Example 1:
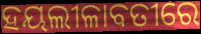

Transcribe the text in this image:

ହୟଲୀଳାବତୀରେ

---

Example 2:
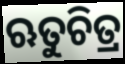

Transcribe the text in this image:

ଋତୁଚିତ୍ର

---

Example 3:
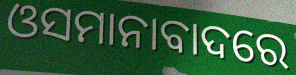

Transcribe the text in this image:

ଓସମାନାବାଦରେ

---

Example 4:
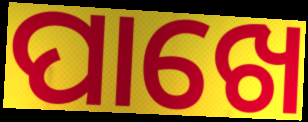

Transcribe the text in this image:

ପାଖେ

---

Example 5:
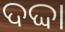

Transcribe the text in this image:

ଦଦ୍ଦା